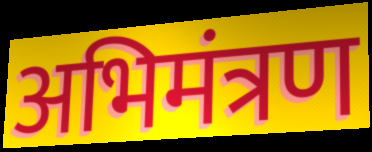
अभिमंत्रण